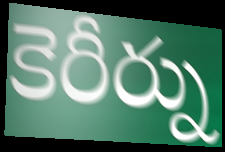
కెరీర్ను